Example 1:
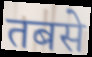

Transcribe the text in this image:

तबसे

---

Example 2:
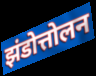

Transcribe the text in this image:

झंडोत्तोलन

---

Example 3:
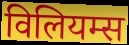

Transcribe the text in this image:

विलियम्स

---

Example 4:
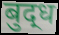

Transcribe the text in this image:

बुद्ध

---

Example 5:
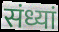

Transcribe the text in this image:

संध्यां